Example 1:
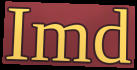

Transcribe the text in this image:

Imd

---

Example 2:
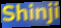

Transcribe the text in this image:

Shinji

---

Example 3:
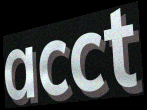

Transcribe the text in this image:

acct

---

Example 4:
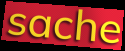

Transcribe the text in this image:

sache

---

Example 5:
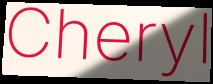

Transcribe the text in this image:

Cheryl